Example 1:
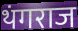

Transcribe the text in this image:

थंगराज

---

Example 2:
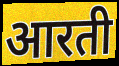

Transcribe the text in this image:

आरती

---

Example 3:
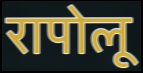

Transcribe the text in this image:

रापोलू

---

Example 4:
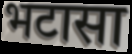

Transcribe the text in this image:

भटासा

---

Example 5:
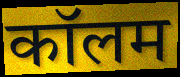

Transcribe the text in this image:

कॉलम